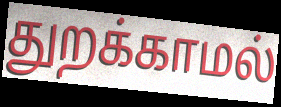
துறக்காமல்